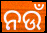
ନଉଁ